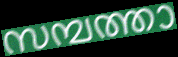
സമ്പത്താ